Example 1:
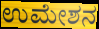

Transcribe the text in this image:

ಉಮೇಶನ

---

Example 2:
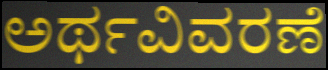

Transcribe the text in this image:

ಅರ್ಥವಿವರಣೆ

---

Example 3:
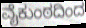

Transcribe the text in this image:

ವೈಕುಂಠದಿಂದ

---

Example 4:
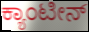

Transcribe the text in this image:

ಕ್ಯಾಂಟೀನ್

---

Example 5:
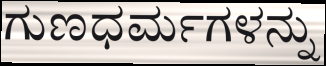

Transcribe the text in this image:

ಗುಣಧರ್ಮಗಳನ್ನು